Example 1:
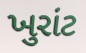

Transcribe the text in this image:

ખુરાંટ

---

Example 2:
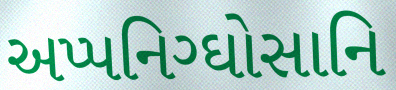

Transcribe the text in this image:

અપ્પનિગ્ઘોસાનિ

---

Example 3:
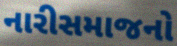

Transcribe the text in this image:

નારીસમાજનો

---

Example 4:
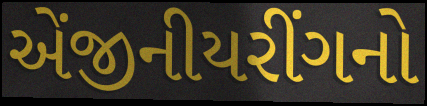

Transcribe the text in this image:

એંજીનીયરીંગનો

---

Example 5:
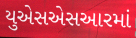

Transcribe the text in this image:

યુએસએસઆરમાં